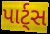
પાર્ટ્સ